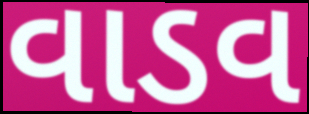
વાડવ